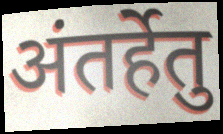
अंतर्हेतु